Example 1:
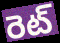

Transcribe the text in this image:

రెట్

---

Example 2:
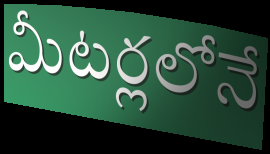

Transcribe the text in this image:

మీటర్లలోనే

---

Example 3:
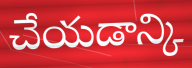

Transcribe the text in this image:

చేయడాన్కి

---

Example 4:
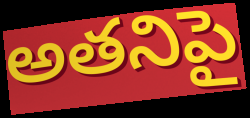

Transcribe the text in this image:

అతనిపై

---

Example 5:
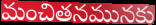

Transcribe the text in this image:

మంచితనమునకు